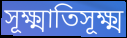
সূক্ষ্মাতিসূক্ষ্ম